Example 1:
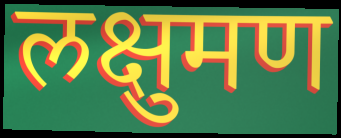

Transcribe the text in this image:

लक्षुमण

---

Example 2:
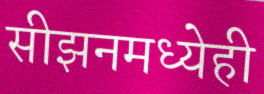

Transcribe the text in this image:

सीझनमध्येही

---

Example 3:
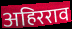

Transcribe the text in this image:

अहिरराव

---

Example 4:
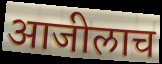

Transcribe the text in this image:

आजीलाच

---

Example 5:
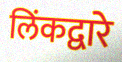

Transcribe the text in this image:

लिंकद्वारे